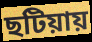
ছটিয়ায়